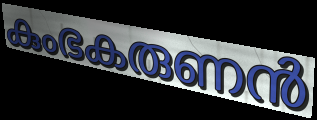
കുംഭകരുണൻ